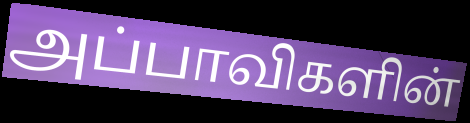
அப்பாவிகளின்